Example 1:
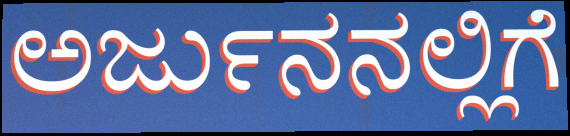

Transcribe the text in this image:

ಅರ್ಜುನನಲ್ಲಿಗೆ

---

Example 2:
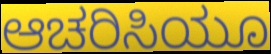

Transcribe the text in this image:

ಆಚರಿಸಿಯೂ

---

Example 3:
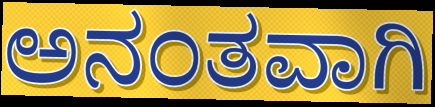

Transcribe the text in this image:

ಅನಂತವಾಗಿ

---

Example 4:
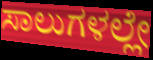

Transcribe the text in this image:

ಸಾಲುಗಳಲ್ಲೇ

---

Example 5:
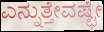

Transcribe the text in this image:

ಎನ್ನುತ್ತೇವಷ್ಟೇ